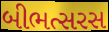
બીભત્સરસ